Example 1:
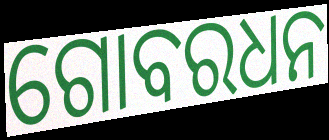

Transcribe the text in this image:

ଗୋବରଧନ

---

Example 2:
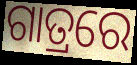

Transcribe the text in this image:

ଗାତ୍ରରେ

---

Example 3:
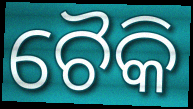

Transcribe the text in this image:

ଚୈକି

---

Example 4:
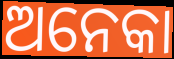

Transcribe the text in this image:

ଅନେକା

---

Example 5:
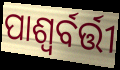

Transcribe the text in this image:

ପାଶ୍ୱର୍ବର୍ତ୍ତୀ